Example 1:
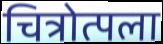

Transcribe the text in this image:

चित्रोत्पला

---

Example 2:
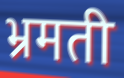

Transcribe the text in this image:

भ्रमती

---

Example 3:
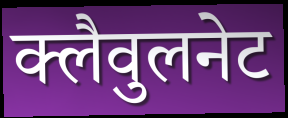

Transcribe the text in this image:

क्लैवुलनेट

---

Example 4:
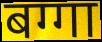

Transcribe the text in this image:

बग्गा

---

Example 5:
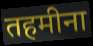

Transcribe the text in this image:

तहमीना